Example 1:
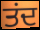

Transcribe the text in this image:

ਤਂਦ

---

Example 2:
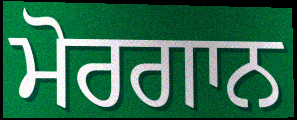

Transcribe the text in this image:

ਮੋਰਗਾਨ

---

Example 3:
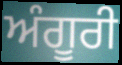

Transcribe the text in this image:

ਅੰਗੂਰੀ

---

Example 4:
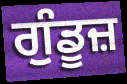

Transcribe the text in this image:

ਗੁੰਡੂਜ਼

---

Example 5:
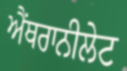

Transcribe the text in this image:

ਐਂਥਰਾਨੀਲੇਟ